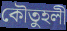
কৌতুহলী